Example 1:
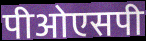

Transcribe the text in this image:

पीओएसपी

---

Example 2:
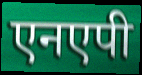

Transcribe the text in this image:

एनएपी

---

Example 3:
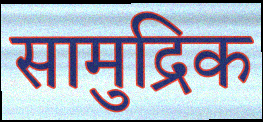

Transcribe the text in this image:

सामुद्रिक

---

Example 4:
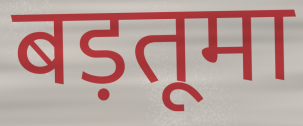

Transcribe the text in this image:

बड़तूमा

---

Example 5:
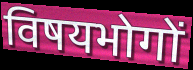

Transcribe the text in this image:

विषयभोगों